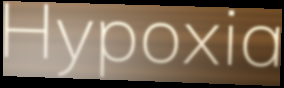
Hypoxia